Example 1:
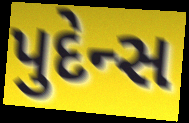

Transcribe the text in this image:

પુદેન્સ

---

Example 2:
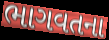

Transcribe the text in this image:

ભાગવતના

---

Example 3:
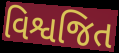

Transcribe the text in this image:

વિશ્વજિત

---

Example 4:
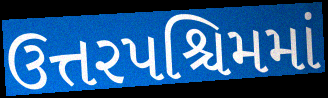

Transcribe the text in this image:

ઉત્તરપશ્ચિમમાં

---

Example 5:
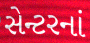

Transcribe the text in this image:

સેન્ટરનાં